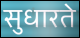
सुधारते